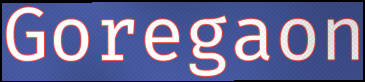
Goregaon